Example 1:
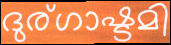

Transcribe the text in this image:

ദുര്ഗാഷ്ടമി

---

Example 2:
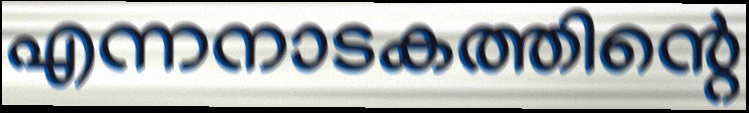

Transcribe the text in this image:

എന്നനാടകത്തിന്റെ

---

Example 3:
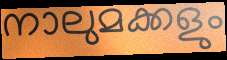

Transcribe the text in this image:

നാലുമക്കളും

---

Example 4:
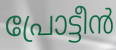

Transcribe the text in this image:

പ്രോട്ടീൻ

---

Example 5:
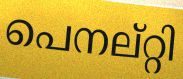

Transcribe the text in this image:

പെനല്റ്റി